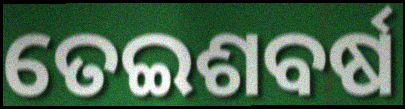
ତେଇଶବର୍ଷ